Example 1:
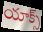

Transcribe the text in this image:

యాక్స్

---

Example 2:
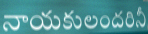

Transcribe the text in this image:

నాయకులందరినీ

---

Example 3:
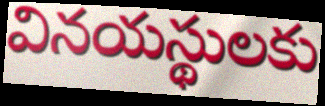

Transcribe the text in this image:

వినయస్థులకు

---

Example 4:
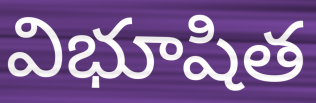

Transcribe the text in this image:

విభూషిత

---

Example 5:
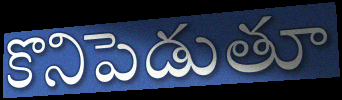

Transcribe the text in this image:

కొనిపెడుతూ